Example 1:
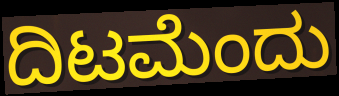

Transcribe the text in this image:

ದಿಟಮೆಂದು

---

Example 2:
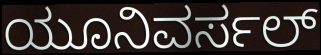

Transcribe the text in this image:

ಯೂನಿವರ್ಸಲ್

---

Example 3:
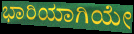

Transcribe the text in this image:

ಭಾರಿಯಾಗಿಯೇ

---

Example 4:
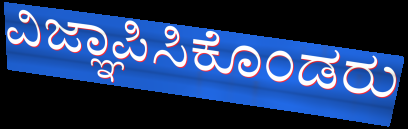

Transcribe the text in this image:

ವಿಜ್ಞಾಪಿಸಿಕೊಂಡರು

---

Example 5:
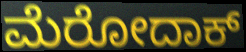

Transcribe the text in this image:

ಮೆರೋದಾಕ್